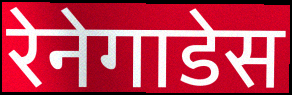
रेनेगाडेस